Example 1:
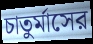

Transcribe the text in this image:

চাতুর্মাসের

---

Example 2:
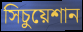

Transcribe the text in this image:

সিচুয়েশান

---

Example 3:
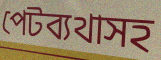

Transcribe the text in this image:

পেটব্যথাসহ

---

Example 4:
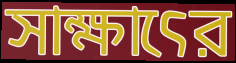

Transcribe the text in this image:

সাক্ষাৎের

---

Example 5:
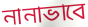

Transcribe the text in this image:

নানাভাবে